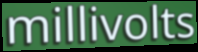
millivolts